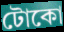
টোকো